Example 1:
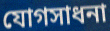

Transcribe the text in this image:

যোগসাধনা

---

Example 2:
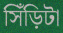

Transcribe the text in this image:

সিঁড়িটা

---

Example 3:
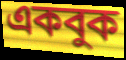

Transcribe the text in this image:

একবুক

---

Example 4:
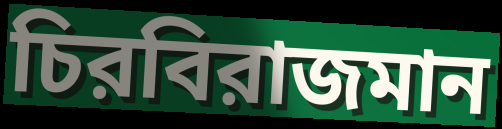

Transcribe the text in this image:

চিরবিরাজমান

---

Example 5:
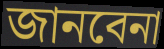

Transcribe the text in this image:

জানবেনা